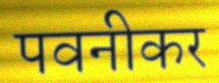
पवनीकर